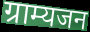
ग्राम्यजन